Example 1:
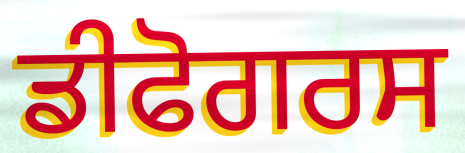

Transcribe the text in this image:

ਡੀਫੋਗਰਸ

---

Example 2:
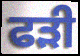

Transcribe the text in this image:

ਫੜੀ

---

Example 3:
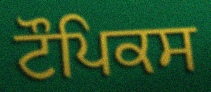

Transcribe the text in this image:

ਟੌਪਿਕਸ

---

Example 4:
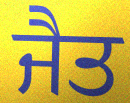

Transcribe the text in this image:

ਜੈਤ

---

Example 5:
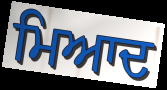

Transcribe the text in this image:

ਮਿਆਦ